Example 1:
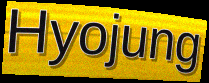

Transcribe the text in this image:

Hyojung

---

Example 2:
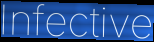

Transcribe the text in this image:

Infective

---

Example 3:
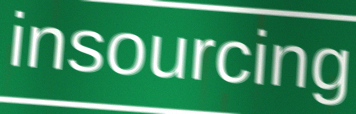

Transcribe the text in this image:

insourcing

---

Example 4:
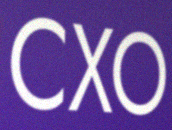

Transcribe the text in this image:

CXO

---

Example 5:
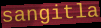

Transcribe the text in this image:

sangitla